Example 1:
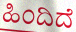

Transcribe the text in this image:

ಹಿಂದಿದೆ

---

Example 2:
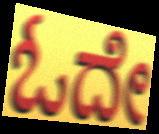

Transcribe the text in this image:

ಓದೇ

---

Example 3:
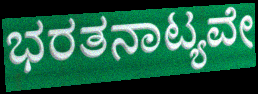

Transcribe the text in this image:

ಭರತನಾಟ್ಯವೇ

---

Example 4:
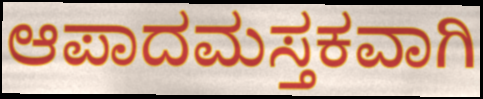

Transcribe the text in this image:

ಆಪಾದಮಸ್ತಕವಾಗಿ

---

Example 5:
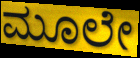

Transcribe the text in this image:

ಮೂಲೇ